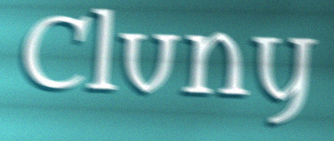
Cluny